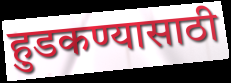
हुडकण्यासाठी